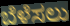
ಬೆಳೆಸಲು